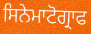
ਸਿਨੇਮਾਟੋਗ੍ਰਾਫ